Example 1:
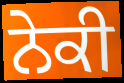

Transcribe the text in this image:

ਨੇਕੀ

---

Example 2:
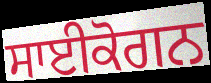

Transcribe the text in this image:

ਸਾਈਕੋਗਨ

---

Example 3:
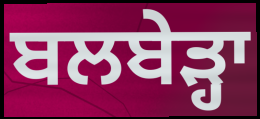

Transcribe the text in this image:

ਬਲਬੇੜ੍ਹਾ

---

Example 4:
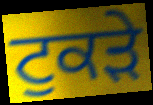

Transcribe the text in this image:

ਟੁਕੜੇ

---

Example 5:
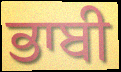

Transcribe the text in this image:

ਭਾਬੀ